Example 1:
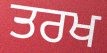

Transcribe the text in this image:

ਤਰਖ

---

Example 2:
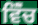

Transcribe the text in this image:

ਵਿੱੰਚ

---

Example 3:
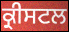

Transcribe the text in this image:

ਕ੍ਰੀਸਟਲ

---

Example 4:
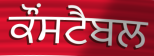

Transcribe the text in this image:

ਕੌਂਸਟੈਬਲ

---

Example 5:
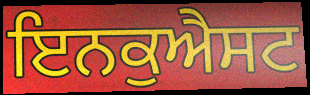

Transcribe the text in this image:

ਇਨਕੁਐਸਟ